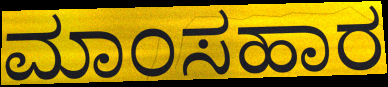
ಮಾಂಸಹಾರ